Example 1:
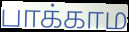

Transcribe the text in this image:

பாக்காம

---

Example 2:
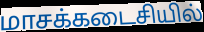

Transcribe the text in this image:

மாசக்கடைசியில்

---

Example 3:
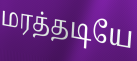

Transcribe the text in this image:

மரத்தடியே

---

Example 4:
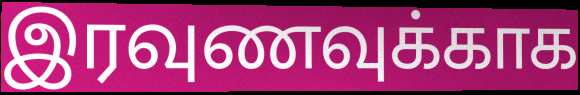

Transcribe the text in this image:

இரவுணவுக்காக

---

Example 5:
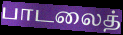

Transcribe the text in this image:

பாடலைத்